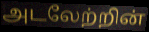
அடலேற்றின்